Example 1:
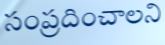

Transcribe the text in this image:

సంప్రదించాలని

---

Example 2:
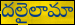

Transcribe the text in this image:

దలైలామా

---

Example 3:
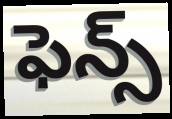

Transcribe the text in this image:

ఫెన్స్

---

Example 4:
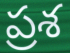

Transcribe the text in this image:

ప్రశ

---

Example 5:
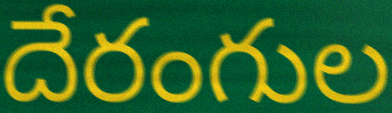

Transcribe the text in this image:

దేరంగుల